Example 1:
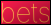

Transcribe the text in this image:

bets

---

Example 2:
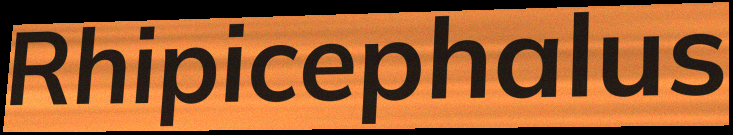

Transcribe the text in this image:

Rhipicephalus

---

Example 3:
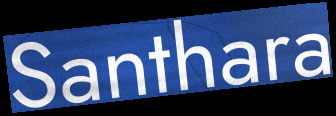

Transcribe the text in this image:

Santhara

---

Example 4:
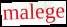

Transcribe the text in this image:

malege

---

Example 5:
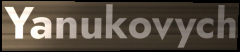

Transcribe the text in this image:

Yanukovych